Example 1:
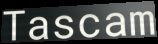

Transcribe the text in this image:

Tascam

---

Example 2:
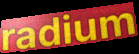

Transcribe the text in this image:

radium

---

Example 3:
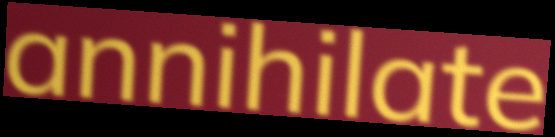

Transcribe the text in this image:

annihilate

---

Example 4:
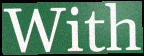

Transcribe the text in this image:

With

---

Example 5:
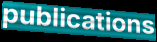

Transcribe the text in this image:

publications